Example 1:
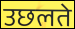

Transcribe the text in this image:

उछलते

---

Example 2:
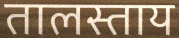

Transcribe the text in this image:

तालस्ताय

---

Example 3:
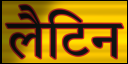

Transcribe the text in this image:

लैटिन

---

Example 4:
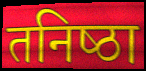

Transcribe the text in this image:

तनिष्‍ठा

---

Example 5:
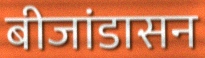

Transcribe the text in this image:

बीजांडासन